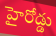
హైరోడ్డు